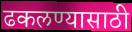
ढकलण्यासाठी